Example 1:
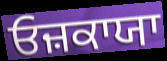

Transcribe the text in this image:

ਓਜ਼ਕਾਯਾ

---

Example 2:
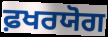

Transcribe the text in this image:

ਫ਼ਖਰਯੋਗ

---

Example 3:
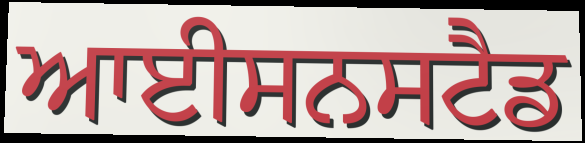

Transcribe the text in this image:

ਆਈਸਨਸਟੈਡ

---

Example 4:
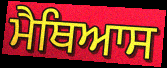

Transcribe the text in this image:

ਮੈਥਿਆਸ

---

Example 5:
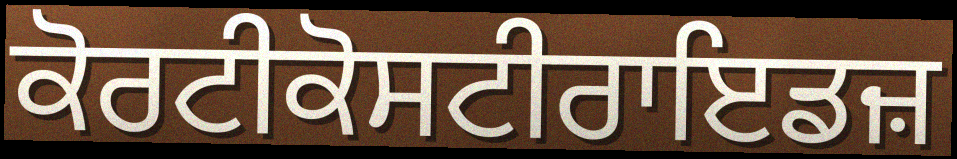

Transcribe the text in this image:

ਕੋਰਟੀਕੋਸਟੀਰਾਇਡਜ਼